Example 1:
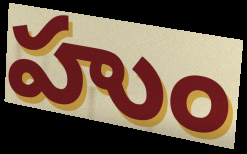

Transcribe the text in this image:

హుం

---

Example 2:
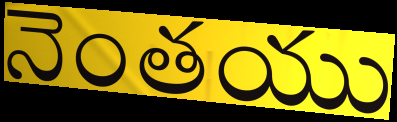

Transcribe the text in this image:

నెంతయు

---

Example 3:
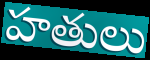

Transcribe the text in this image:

హతులు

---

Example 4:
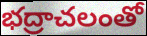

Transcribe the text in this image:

భద్రాచలంతో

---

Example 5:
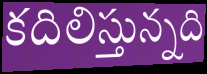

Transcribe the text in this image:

కదిలిస్తున్నది